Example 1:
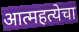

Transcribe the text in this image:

आत्महत्येचा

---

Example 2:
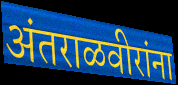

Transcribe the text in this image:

अंतराळवीरांना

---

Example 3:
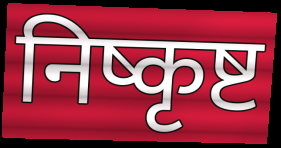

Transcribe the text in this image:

निष्कृष्ट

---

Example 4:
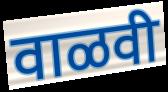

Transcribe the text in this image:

वाळवी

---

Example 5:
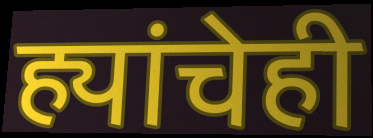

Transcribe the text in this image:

ह्यांचेही